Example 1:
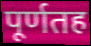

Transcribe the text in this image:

पूर्णतह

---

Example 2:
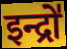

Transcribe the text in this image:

इन्द्रो॑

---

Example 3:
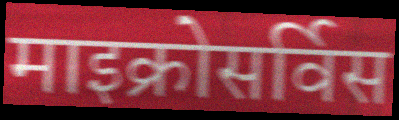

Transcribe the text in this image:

माइक्रोसर्विस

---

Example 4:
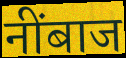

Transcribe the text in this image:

नींबाज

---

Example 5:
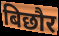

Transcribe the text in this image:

बिछौर